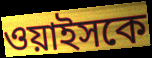
ওয়াইসকে